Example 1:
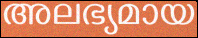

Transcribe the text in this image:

അലഭ്യമായ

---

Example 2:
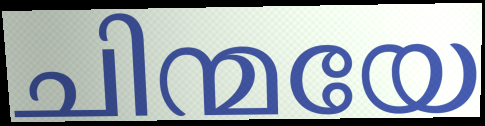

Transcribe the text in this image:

ചിന്മയേ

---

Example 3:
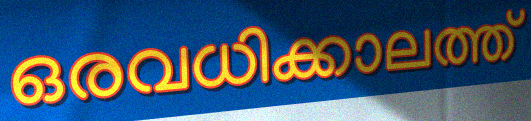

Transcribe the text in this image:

ഒരവധിക്കാലത്ത്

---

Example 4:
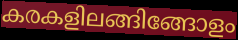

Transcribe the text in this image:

കരകളിലങ്ങിങ്ങോളം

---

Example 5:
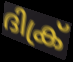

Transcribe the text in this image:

ദിക്ര്